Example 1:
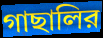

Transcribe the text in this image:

গাছালির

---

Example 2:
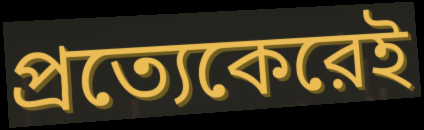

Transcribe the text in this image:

প্রত্যেকেরেই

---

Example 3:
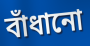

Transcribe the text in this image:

বাঁধানো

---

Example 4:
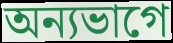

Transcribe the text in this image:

অন্যভাগে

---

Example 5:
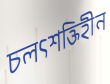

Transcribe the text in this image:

চলৎশক্তিহীন